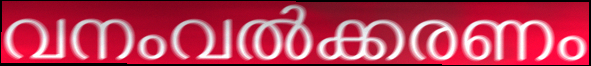
വനംവൽക്കരണം